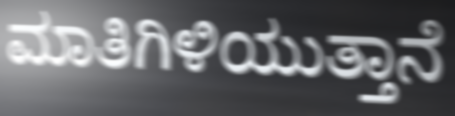
ಮಾತಿಗಿಳಿಯುತ್ತಾನೆ